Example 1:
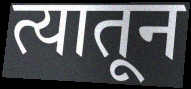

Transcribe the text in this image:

त्यातून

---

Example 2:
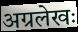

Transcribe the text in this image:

अग्रलेखः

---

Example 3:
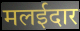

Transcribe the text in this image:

मलईदार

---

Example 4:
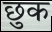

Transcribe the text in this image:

छुक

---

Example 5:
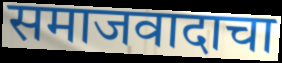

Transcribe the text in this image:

समाजवादाचा